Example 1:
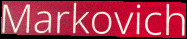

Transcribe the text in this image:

Markovich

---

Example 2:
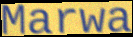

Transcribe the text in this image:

Marwa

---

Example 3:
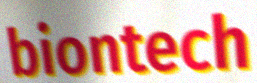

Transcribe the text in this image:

biontech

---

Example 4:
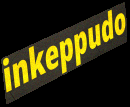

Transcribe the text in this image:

inkeppudo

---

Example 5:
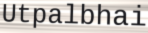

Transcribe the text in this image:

Utpalbhai